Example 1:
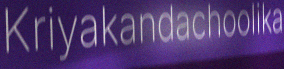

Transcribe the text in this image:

Kriyakandachoolika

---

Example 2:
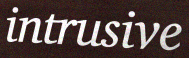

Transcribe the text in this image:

intrusive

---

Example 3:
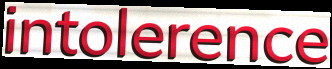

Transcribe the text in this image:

intolerence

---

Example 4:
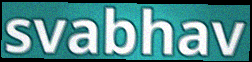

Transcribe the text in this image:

svabhav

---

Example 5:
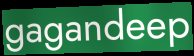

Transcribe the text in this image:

gagandeep